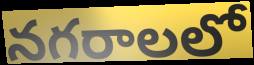
నగరాలలో